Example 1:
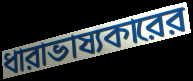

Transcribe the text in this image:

ধারাভাষ্যকারের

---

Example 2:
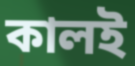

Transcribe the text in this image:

কালই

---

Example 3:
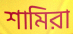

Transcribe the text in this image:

শামিরা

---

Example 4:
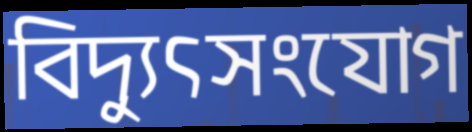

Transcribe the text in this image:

বিদ্যুৎসংযোগ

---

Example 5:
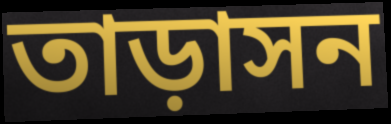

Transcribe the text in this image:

তাড়াসন